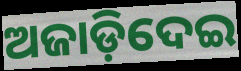
ଅଜାଡ଼ିଦେଇ